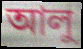
আলু